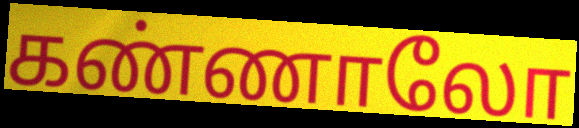
கண்ணாலோ